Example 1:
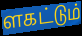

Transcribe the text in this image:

ளகட்டும்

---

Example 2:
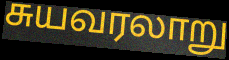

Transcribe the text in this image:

சுயவரலாறு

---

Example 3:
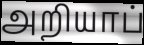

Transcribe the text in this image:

அறியாப்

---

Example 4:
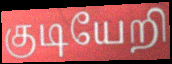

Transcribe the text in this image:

குடியேறி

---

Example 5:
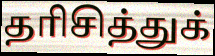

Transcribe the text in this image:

தரிசித்துக்